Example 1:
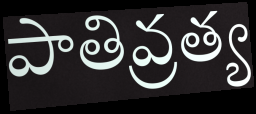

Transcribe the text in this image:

పాతివ్రత్య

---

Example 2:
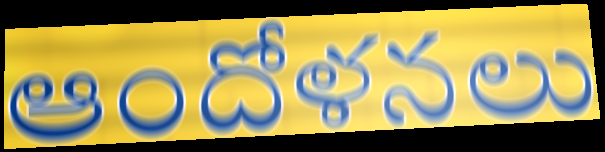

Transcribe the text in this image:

ఆందోళనలు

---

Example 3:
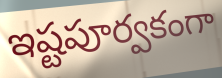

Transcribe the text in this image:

ఇష్టపూర్వకంగా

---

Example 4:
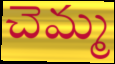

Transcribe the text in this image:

చెమ్మ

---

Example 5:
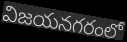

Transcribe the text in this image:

విజయనగరంలో